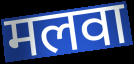
मलवा